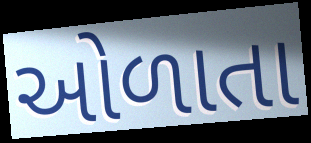
ઓળાતા